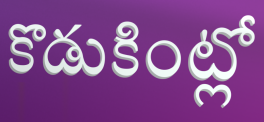
కొడుకింట్లో